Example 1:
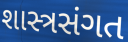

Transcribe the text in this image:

શાસ્ત્રસંગત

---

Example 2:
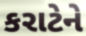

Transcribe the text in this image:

કરાટેને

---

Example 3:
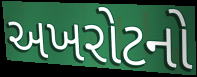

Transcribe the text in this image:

અખરોટનો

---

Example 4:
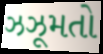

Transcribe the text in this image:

ઝઝૂમતો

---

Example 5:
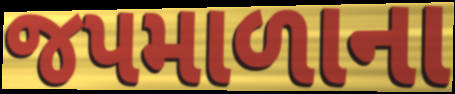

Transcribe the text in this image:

જપમાળાના